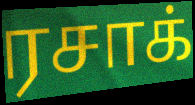
ரசாக்